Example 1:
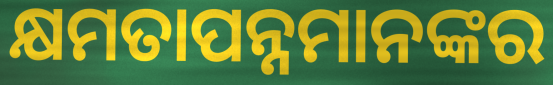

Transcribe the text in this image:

କ୍ଷମତାପନ୍ନମାନଙ୍କର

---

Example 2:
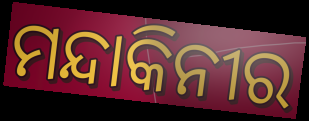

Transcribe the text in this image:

ମନ୍ଦାକିନୀର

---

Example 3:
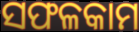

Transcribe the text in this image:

ସଫଳକାମ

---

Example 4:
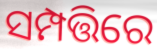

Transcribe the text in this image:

ସମ୍ପତ୍ତିରେ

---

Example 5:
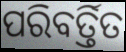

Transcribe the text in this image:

ପରିବର୍ତ୍ତିତ